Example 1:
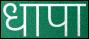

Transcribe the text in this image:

धापा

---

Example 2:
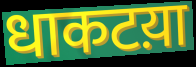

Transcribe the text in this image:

धाकटय़ा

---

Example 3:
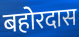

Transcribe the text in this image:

बहोरदास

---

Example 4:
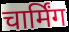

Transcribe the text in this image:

चार्मिंग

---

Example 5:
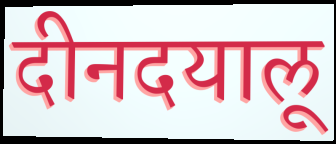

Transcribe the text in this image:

दीनदयालू